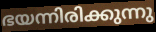
ഭയന്നിരിക്കുന്നു